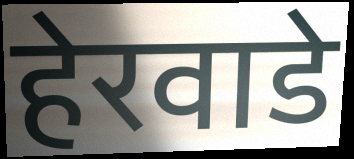
हेरवाडे